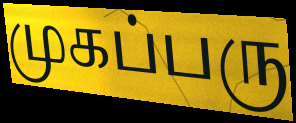
முகப்பரு